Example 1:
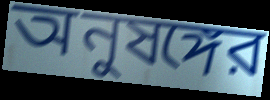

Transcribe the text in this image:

অনুষঙ্গের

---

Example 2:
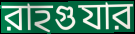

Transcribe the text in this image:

রাহগুযার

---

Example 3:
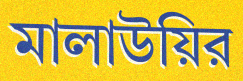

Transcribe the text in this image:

মালাউয়ির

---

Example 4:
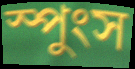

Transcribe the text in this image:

স্পুংস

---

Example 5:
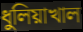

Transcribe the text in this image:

ধুলিয়াখাল